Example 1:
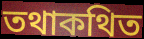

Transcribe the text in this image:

তথাকথিত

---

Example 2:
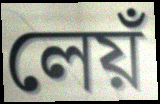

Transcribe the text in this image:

লেয়ঁ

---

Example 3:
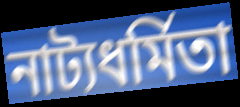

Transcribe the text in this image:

নাট্যধর্মিতা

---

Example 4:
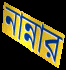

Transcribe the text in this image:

নান্নার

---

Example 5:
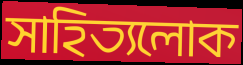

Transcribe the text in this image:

সাহিত্যলোক